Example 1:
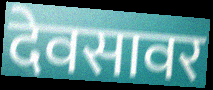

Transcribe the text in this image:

देवसावर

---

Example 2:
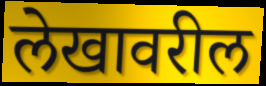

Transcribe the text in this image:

लेखावरील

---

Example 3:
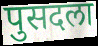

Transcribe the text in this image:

पुसदला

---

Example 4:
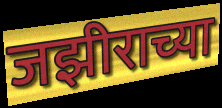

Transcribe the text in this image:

जझीराच्या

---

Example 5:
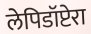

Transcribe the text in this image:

लेपिडॉप्टेरा